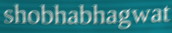
shobhabhagwat